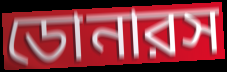
ডোনারস